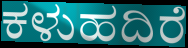
ಕಳುಹದಿರೆ